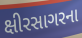
ક્ષીરસાગરના